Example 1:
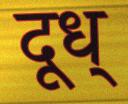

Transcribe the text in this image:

दूध्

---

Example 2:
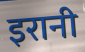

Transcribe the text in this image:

इरानी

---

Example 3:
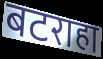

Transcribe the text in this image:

बटराहा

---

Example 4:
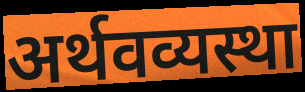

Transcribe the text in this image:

अर्थवव्यस्था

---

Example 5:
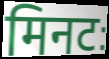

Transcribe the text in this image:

मिनटः